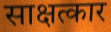
साक्षत्कार